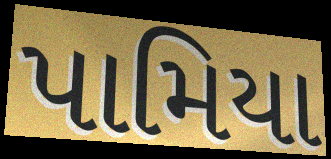
પામિયા